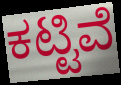
ಕಟ್ಟಿವೆ